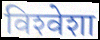
विश्वेशा